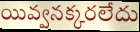
యివ్వనక్కరలేదు